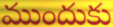
ముందుకు